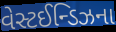
વેસ્ટઈન્ડિઝના